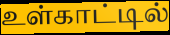
உள்காட்டில்